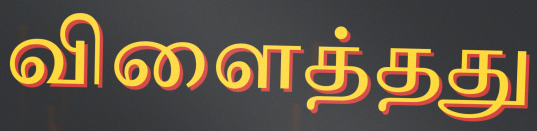
விளைத்தது